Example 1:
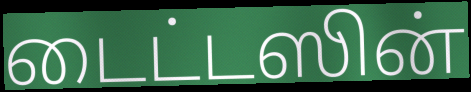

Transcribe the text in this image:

டைட்டஸின்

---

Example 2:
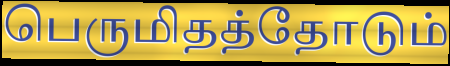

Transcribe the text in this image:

பெருமிதத்தோடும்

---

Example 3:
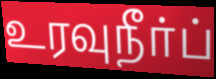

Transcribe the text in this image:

உரவுநீர்ப்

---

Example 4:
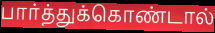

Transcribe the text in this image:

பார்த்துக்கொண்டால்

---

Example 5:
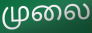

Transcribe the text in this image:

முலை